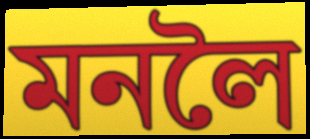
মনলৈ